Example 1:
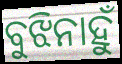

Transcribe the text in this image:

ବୁଝିନାହୁଁ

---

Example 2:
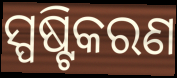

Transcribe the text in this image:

ସ୍ପଷ୍ଟିକରଣ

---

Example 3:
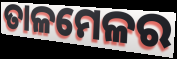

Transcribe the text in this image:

ତାଳମେଳର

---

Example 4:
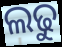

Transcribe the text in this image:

ଲଢୁ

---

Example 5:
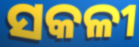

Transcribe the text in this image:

ସକଳୀ